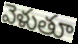
వెళుతూ